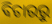
ବିଚାରରୁ